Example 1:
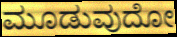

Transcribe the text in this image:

ಮೂಡುವುದೋ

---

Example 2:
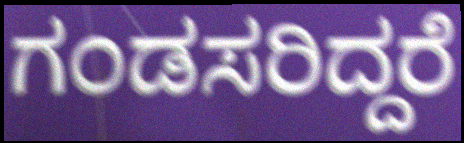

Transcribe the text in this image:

ಗಂಡಸರಿದ್ದರೆ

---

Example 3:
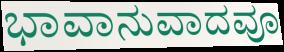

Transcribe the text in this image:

ಭಾವಾನುವಾದವೂ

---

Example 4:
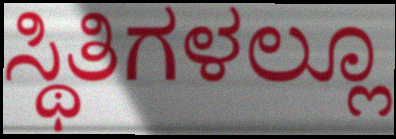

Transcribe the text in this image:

ಸ್ಥಿತಿಗಳಲ್ಲೂ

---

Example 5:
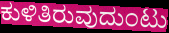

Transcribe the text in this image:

ಕುಳಿತಿರುವುದುಂಟು